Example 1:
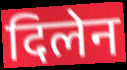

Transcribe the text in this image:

दिलेन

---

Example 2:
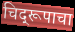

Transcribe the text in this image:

चिद्‌रूपाचा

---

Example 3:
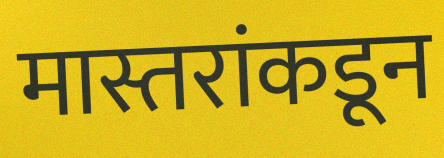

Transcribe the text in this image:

मास्तरांकडून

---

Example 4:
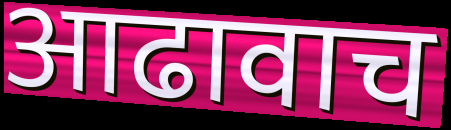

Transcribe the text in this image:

आढावाच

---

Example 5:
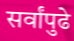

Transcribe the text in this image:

सर्वांपुढे